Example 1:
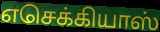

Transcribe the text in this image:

எசெக்கியாஸ்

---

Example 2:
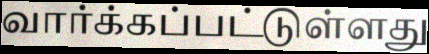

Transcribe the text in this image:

வார்க்கப்பட்டுள்ளது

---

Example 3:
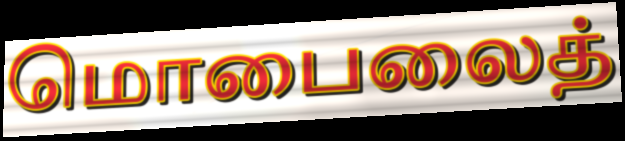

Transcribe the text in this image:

மொபைலைத்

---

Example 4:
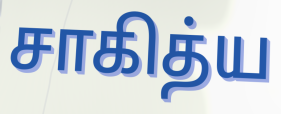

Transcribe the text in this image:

சாகித்ய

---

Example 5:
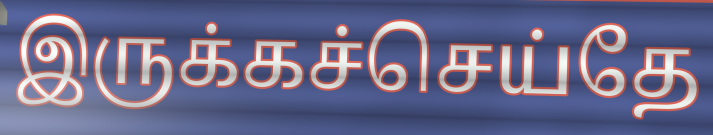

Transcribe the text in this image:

இருக்கச்செய்தே